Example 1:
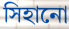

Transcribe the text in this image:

সিহানো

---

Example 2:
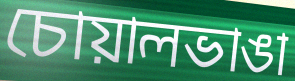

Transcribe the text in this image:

চোয়ালভাঙা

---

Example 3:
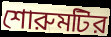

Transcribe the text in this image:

শোরুমটির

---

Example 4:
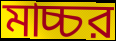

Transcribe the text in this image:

মাচ্চর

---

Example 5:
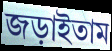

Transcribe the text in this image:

জড়াইতাম